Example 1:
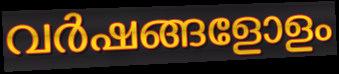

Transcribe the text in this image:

വർഷങ്ങളോളം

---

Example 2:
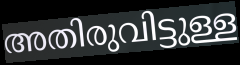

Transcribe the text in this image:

അതിരുവിട്ടുള്ള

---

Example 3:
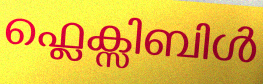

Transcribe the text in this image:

ഫ്ലെക്സിബിൾ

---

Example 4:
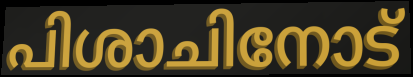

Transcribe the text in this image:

പിശാചിനോട്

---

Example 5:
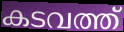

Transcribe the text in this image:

കടവത്ത്